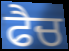
ਫੈਚ